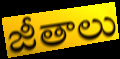
జీతాలు